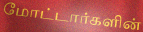
மோட்டார்களின்